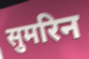
सुमरिन